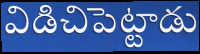
విడిచిపెట్టాడు